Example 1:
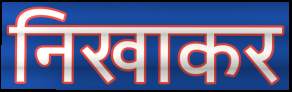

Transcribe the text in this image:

निखाकर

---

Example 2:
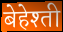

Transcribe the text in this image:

बेहेश्ती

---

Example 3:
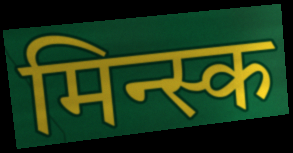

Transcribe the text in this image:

मिन्स्क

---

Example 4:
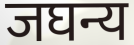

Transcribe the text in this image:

जघन्‍य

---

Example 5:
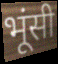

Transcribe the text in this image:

भूंसी